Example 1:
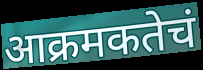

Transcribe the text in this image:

आक्रमकतेचं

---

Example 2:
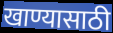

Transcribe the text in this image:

खाण्यासाठी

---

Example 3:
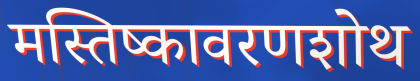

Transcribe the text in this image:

मस्तिष्कावरणशोथ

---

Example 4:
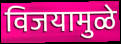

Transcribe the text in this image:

विजयामुळे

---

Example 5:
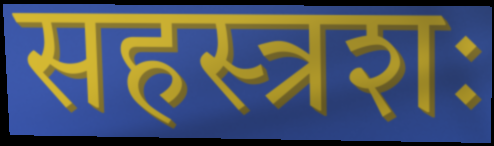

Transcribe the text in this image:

सहस्त्रशः